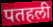
पतहली